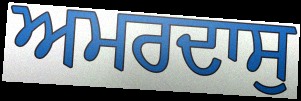
ਅਮਰਦਾਸੁ